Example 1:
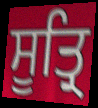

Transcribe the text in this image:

ਸੂਤ੍ਰਿ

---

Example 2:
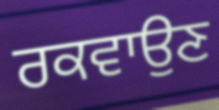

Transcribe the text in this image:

ਰਕਵਾਉਣ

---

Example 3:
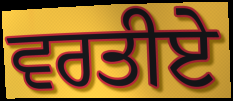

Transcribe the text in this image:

ਵਰਤੀਏ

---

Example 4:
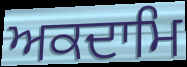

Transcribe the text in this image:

ਅਕਦਾਮਿ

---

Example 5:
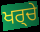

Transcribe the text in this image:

ਖਰ੍ਚੇ